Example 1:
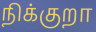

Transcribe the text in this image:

நிக்குறா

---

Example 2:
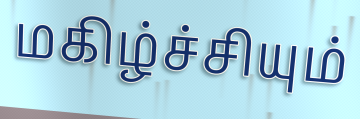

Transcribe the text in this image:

மகிழ்ச்சியும்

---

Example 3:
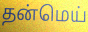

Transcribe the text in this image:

தன்மெய்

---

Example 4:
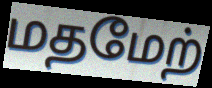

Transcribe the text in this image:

மதமேற்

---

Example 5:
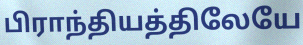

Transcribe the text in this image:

பிராந்தியத்திலேயே